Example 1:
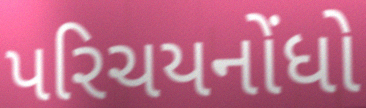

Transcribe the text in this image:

પરિચયનોંધો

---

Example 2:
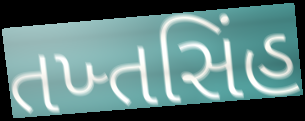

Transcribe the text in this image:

તખ્તસિંહ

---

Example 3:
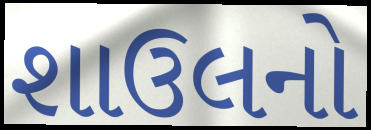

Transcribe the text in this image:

શાઉલનો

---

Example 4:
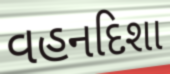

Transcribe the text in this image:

વહનદિશા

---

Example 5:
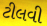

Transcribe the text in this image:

ટીલવી